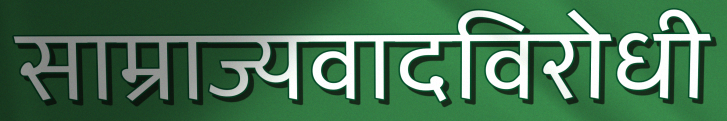
साम्राज्यवादविरोधी